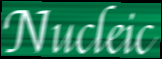
Nucleic